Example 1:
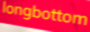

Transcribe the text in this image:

longbottom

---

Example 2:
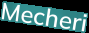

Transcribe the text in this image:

Mecheri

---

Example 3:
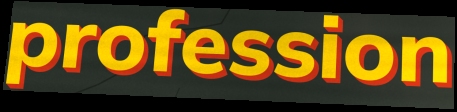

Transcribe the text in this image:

profession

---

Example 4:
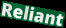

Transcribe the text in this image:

Reliant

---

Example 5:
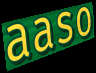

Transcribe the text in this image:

aaso